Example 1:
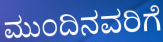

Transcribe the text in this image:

ಮುಂದಿನವರಿಗೆ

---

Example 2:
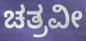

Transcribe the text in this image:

ಚತ್ರವೀ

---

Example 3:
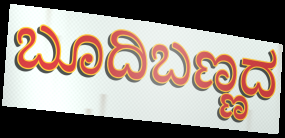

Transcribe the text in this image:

ಬೂದಿಬಣ್ಣದ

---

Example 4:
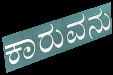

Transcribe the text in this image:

ಕಾರುವನು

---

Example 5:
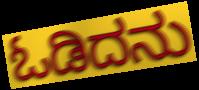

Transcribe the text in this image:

ಓಡಿದನು